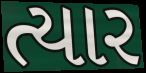
ત્યાર